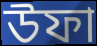
উফা